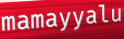
mamayyalu